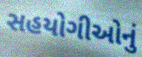
સહયોગીઓનું